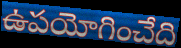
ఉపయోగించేది